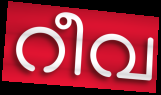
റീവ